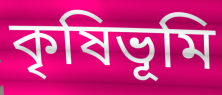
কৃষিভূমি